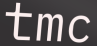
tmc